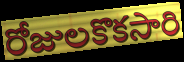
రోజులకొకసారి